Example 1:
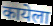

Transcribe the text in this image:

कायेला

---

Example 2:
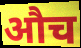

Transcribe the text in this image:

औच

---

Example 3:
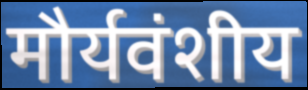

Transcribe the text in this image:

मौर्यवंशीय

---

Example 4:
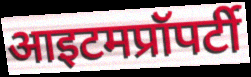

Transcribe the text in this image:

आइटमप्रॉपर्टी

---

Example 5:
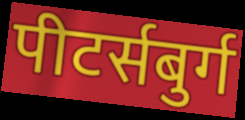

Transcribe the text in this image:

पीटर्सबुर्ग